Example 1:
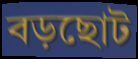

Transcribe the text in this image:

বড়ছোট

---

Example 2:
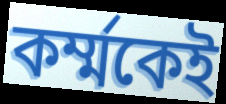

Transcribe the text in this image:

কর্ম্মকেই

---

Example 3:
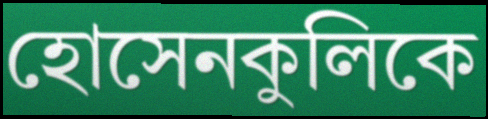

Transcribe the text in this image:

হোসেনকুলিকে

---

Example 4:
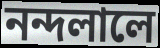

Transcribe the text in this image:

নন্দলালে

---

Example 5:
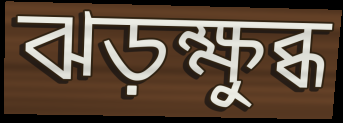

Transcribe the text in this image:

ঝড়ক্ষুব্ধ